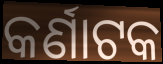
କର୍ଣାଟକ